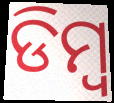
ଡିମ୍ଵ